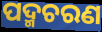
ପଦ୍ମଚରଣ